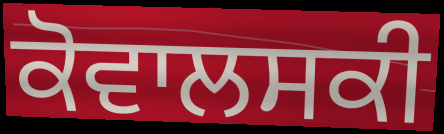
ਕੋਵਾਲਸਕੀ